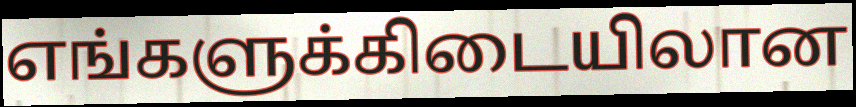
எங்களுக்கிடையிலான